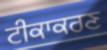
ਟੀਕਾਕਰਣ